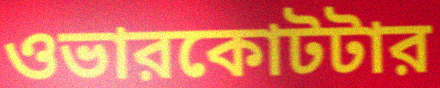
ওভারকোটটার